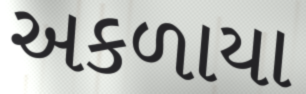
અકળાયા